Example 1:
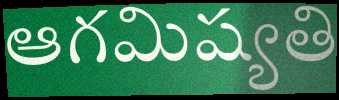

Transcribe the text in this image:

ఆగమిష్యతి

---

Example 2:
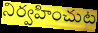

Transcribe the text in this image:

నిర్వహించుట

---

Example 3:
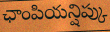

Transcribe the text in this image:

ఛాంపియన్షిప్కు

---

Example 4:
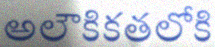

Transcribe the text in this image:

అలౌకికతలోకి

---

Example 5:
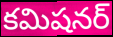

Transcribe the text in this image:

కమిషనర్